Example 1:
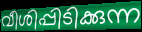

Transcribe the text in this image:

വീശിപ്പിടിക്കുന്ന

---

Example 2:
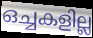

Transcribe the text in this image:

ഒച്ചകളില്ല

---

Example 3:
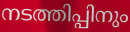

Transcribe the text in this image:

നടത്തിപ്പിനും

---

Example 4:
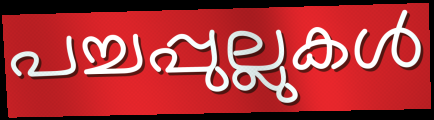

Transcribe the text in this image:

പച്ചപ്പുല്ലുകൾ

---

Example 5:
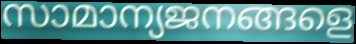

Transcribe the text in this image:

സാമാന്യജനങ്ങളെ